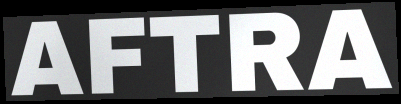
AFTRA